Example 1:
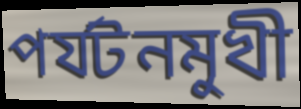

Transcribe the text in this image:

পর্যটনমুখী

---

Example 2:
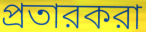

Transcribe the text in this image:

প্রতারকরা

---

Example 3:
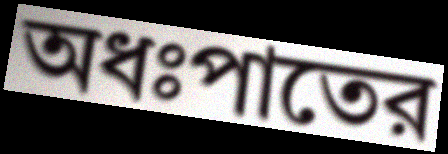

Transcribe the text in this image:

অধঃপাতের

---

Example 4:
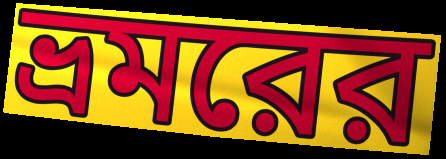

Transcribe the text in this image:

ভ্রমরের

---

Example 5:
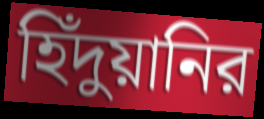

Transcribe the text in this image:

হিঁদুয়ানির